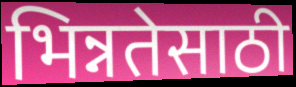
भिन्नतेसाठी